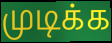
முடிக்க